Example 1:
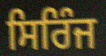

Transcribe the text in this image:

ਸਿਰਿੰਜ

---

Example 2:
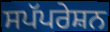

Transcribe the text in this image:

ਸਪੱਪਰੇਸ਼ਨ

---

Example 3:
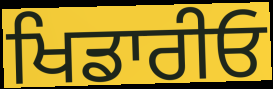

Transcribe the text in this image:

ਖਿਡਾਰੀਓ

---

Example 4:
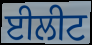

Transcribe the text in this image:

ਈਲੀਟ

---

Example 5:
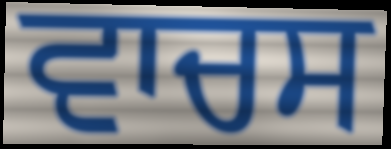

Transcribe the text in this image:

ਵਾਚਸ